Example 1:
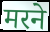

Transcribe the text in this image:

मरने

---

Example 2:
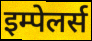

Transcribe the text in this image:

इम्पेलर्स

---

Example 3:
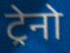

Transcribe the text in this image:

ट्रेनो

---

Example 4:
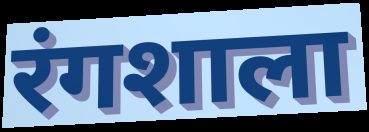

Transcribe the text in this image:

रंगशाला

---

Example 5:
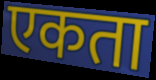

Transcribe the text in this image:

एकता